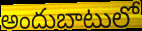
అందుబాటులో